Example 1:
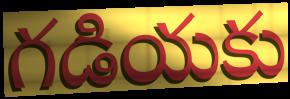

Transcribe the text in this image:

గడియకు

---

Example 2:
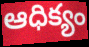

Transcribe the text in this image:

ఆధిక్యం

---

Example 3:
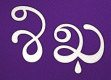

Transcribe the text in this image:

శిఖ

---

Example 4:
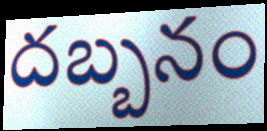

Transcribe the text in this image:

దబ్బనం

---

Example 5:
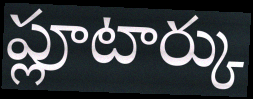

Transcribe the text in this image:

ప్లూటార్కు